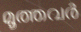
മൂത്തവർ